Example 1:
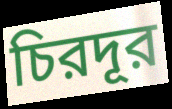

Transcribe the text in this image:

চিরদূর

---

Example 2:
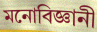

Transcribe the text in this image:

মনোবিজ্ঞানী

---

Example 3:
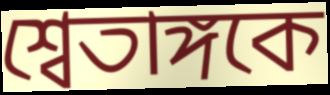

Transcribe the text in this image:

শ্বেতাঙ্গকে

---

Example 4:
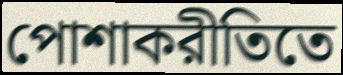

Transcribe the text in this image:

পোশাকরীতিতে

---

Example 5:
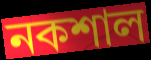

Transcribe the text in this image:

নকশাল